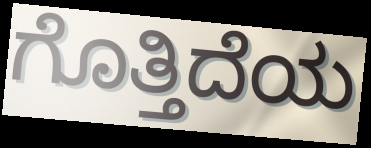
ಗೊತ್ತಿದೆಯ